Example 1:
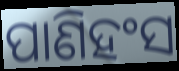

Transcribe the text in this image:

ପାଣିହଂସ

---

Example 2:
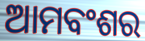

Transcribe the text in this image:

ଆମବଂଶର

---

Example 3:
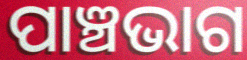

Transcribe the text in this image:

ପାଞ୍ଚଭାଗ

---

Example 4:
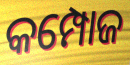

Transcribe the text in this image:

କମ୍ପୋଜ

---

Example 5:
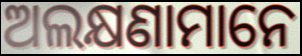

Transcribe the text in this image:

ଅଲକ୍ଷଣାମାନେ